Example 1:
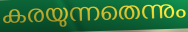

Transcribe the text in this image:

കരയുന്നതെന്നും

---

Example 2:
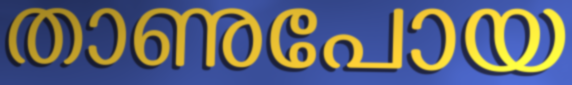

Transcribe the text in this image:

താണുപോയ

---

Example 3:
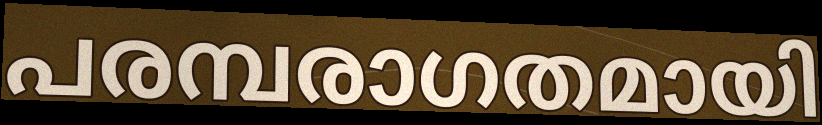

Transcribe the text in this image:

പരമ്പരാഗതമായി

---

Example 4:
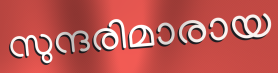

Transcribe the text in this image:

സുന്ദരിമാരായ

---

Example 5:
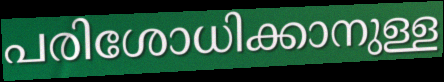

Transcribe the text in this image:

പരിശോധിക്കാനുള്ള